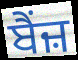
ਬੈਂਜ਼